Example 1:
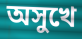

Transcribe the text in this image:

অসুখে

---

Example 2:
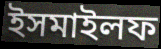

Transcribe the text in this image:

ইসমাইলফ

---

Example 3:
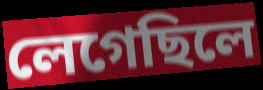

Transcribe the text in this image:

লেগেছিলে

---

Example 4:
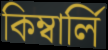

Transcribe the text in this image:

কিম্বার্লি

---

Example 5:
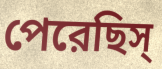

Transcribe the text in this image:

পেরেছিস্